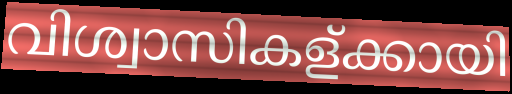
വിശ്വാസികള്ക്കായി